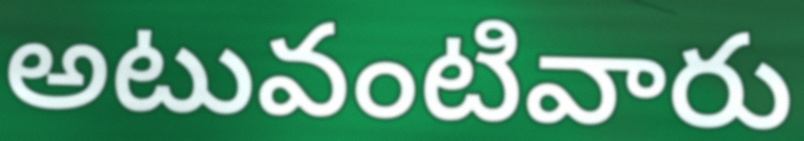
అటువంటివారు